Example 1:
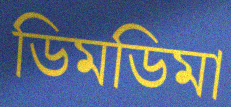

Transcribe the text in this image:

ডিমডিমা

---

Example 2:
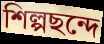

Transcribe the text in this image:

শিল্পছন্দে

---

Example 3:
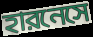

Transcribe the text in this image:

হারনেসে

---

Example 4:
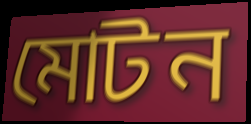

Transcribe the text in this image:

মোটন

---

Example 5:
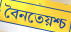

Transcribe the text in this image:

বৈনতেয়শ্চ